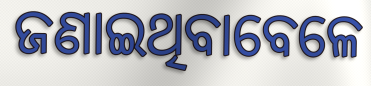
ଜଣାଇଥିବାବେଳେ